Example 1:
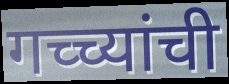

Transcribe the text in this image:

गच्च्यांची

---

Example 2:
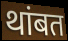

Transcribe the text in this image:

थांबत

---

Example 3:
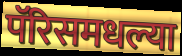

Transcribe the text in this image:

पॅरिसमधल्या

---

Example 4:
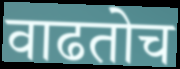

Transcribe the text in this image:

वाढतोच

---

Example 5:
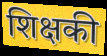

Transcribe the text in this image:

शिक्षकी